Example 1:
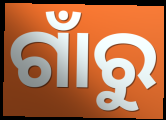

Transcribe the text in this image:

ଗାଁରୁ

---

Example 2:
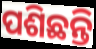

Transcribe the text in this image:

ପଶିଛନ୍ତି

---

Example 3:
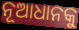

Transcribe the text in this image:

ନୂଆଧାନକୁ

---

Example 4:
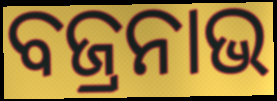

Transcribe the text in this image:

ବଜ୍ରନାଭ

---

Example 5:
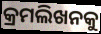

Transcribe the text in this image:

କ୍ରମଲିଖନକୁ